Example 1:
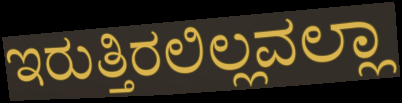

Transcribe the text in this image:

ಇರುತ್ತಿರಲಿಲ್ಲವಲ್ಲಾ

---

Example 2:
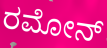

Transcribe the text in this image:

ರಮೋನ್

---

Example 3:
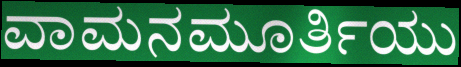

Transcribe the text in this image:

ವಾಮನಮೂರ್ತಿಯು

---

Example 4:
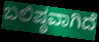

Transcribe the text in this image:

ಬಲಿಷ್ಠವಾಗಿದೆ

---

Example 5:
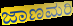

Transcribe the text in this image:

ಜಾಣಮರಿ